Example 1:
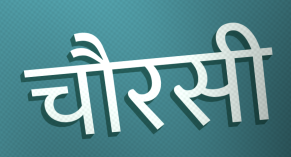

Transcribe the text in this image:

चौरसी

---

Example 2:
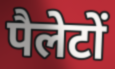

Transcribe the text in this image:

पैलेटों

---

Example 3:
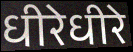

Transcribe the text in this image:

धीरेधीरे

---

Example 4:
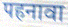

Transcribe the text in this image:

पहनावा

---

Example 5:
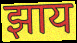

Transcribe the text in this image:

झाय